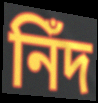
নিঁদ